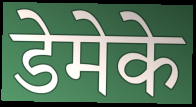
डेमेके